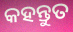
କହନ୍ତୁତ